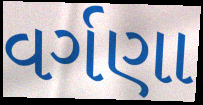
વર્ગણા